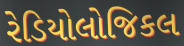
રેડિયોલોજિકલ